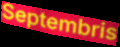
Septembris